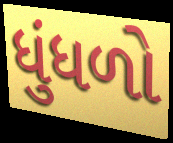
ધુંધળો